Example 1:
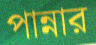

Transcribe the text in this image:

পান্নার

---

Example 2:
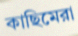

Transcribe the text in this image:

কাছিমেরা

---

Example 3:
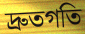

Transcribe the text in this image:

দ্রুতগতি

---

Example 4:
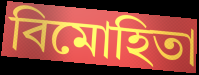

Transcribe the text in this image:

বিমোহিতা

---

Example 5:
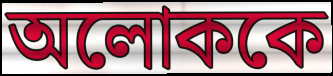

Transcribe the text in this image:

অলোককে